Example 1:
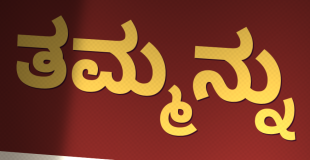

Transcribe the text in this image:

ತಮ್ಮನ್ನು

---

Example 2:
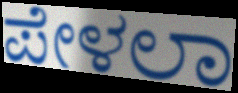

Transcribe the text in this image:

ಪೇಳಲಾ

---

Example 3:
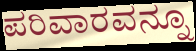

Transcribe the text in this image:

ಪರಿವಾರವನ್ನೂ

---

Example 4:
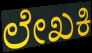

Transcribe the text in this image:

ಲೇಖಕಿ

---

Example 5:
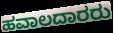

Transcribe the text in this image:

ಹವಾಲದಾರರು